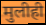
मुलीही